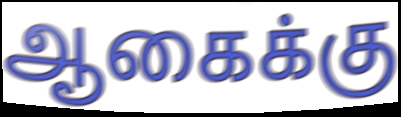
ஆகைக்கு